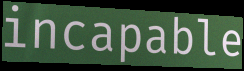
incapable